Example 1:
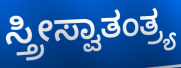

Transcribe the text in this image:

ಸ್ತ್ರೀಸ್ವಾತಂತ್ರ್ಯ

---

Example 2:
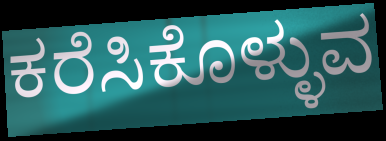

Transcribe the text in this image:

ಕರೆಸಿಕೊಳ್ಳುವ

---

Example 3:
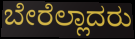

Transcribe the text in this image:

ಬೇರೆಲ್ಲಾದರು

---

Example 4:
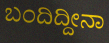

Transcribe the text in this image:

ಬಂದಿದ್ದೀನಾ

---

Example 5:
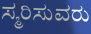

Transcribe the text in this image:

ಸ್ಮರಿಸುವರು